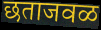
छताजवळ